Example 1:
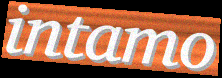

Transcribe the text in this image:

intamo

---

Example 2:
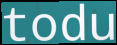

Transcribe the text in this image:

todu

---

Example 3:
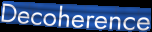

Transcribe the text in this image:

Decoherence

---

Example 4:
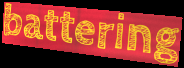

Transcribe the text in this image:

battering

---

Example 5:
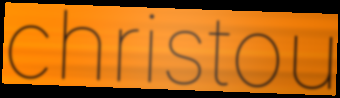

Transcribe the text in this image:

christou